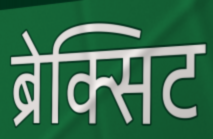
ब्रेक्सिट